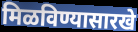
मिळविण्यासारखे